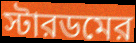
স্টারডমের